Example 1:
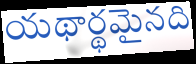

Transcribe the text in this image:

యథార్థమైనది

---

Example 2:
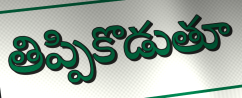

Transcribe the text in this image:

తిప్పికొడుతూ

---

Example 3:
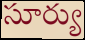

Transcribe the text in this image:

సూర్యు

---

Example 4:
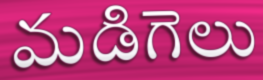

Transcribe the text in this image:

మడిగెలు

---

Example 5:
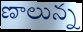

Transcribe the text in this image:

ణాలున్న